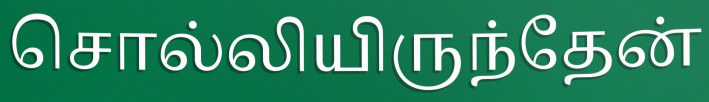
சொல்லியிருந்தேன்